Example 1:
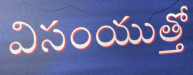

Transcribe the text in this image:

విసంయుత్తో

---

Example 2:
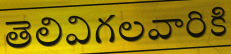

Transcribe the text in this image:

తెలివిగలవారికి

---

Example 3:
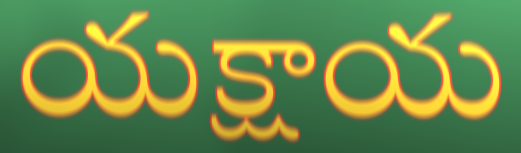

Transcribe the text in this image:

యక్షాయ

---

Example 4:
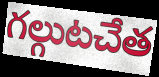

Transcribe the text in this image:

గల్గుటచేత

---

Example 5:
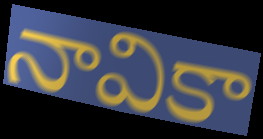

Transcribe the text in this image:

నావికా